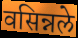
वसिन्नले